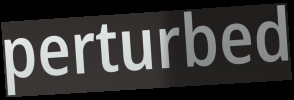
perturbed